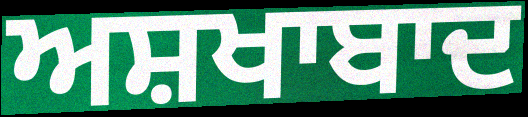
ਅਸ਼ਖਾਬਾਦ